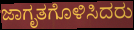
ಜಾಗೃತಗೊಳಿಸಿದರು